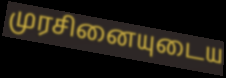
முரசினையுடைய